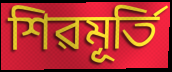
শিৱমূৰ্তি